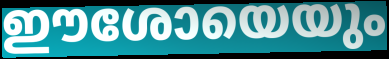
ഈശോയെയും